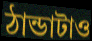
ঠান্ডাটাও